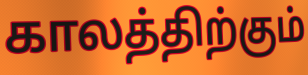
காலத்திற்கும்